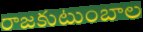
రాజకుటుంబాల